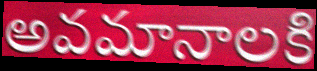
అవమానాలకి